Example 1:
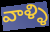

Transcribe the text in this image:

వాళ్ళి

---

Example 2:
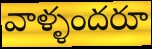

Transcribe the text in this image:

వాళ్ళందరూ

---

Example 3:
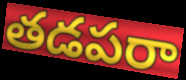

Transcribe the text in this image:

తడపరా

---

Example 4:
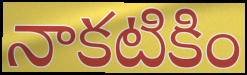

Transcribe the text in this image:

నాకటికిం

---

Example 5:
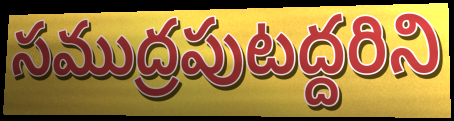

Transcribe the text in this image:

సముద్రపుటద్దరిని